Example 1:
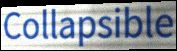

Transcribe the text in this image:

Collapsible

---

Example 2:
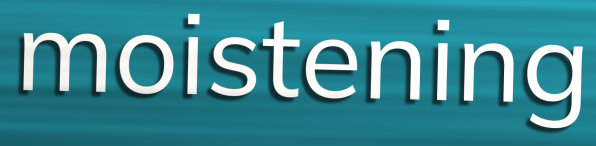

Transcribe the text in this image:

moistening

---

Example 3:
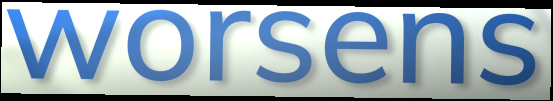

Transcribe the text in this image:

worsens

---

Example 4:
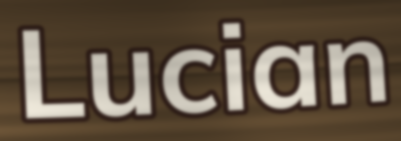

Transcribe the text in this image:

Lucian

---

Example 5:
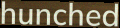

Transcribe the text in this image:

hunched